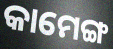
କାମେଙ୍ଗ